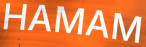
HAMAM